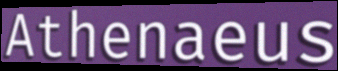
Athenaeus